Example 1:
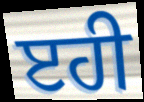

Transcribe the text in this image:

ੲਹੀ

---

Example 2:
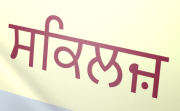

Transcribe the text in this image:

ਸਕਿਲਜ਼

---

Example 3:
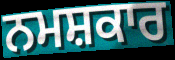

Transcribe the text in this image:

ਨਮਸ਼ਕਾਰ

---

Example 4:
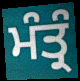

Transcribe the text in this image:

ਮੰਤ੍ਰੰ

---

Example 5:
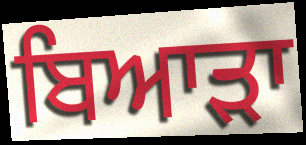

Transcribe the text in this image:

ਬਿਆੜਾ